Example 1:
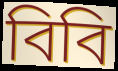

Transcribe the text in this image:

বিবি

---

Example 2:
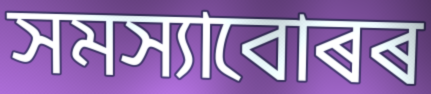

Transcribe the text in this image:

সমস্যাবোৰৰ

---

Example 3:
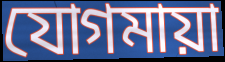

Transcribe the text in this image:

যোগমায়া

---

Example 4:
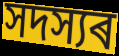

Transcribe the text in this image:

সদস্যৰ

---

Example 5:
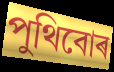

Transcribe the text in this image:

পুথিবোৰ